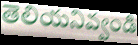
తెలియనివ్వండి